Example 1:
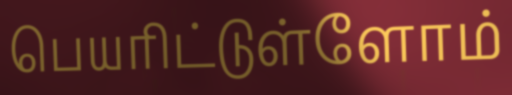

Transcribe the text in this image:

பெயரிட்டுள்ளோம்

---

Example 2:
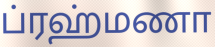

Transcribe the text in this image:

ப்ரஹ்மணா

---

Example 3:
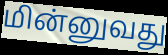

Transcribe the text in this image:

மின்னுவது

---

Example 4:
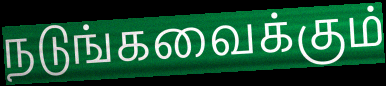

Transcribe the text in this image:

நடுங்கவைக்கும்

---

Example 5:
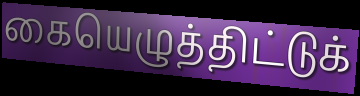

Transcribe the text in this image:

கையெழுத்திட்டுக்